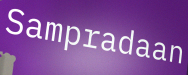
Sampradaan